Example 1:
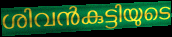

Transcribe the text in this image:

ശിവൻകുട്ടിയുടെ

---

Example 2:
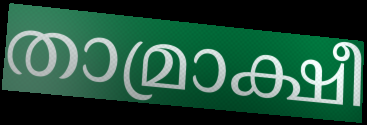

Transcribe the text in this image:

താമ്രാക്ഷീ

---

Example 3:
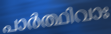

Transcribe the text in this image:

പാർത്ഥിവാഃ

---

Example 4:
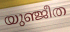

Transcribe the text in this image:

യുഞ്ജീത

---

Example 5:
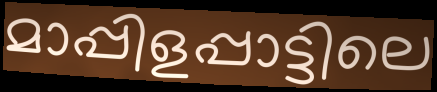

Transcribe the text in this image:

മാപ്പിളപ്പാട്ടിലെ